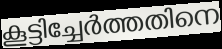
കൂട്ടിച്ചേർത്തതിനെ